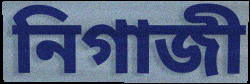
নিগাজী